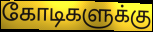
கோடிகளுக்கு